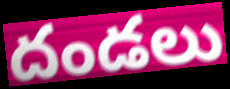
దండలు